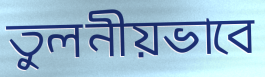
তুলনীয়ভাবে